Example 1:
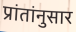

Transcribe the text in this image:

प्रांतांनुसार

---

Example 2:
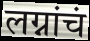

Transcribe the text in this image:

लग्नांचं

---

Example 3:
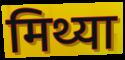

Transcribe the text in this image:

मिथ्या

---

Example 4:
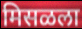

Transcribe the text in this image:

मिसळला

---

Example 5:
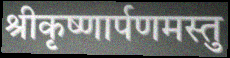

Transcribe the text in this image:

श्रीकृष्णार्पणमस्तु